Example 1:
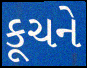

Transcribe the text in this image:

કૂચને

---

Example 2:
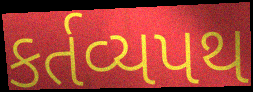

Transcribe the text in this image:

કર્તવ્યપથ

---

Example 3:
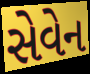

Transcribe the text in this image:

સેવેન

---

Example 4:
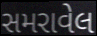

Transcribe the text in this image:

સમરાવેલ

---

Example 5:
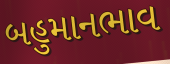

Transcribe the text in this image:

બહુમાનભાવ